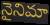
నైనిమా